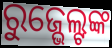
ରୁଜ୍ଭେଲ୍ଟଙ୍କ